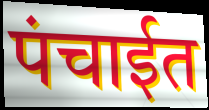
पंचाईत